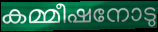
കമ്മീഷനോടു